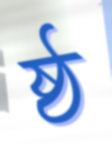
ষ্ঠ